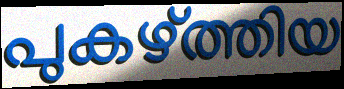
പുകഴ്ത്തിയ